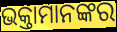
ଭକ୍ତାମାନଙ୍କର